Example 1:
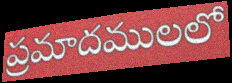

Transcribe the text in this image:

ప్రమాదములలో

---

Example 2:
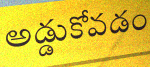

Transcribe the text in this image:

అడ్డుకోవడం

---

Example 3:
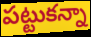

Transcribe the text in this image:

పట్టుకన్నా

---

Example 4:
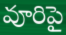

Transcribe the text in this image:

వూరిపై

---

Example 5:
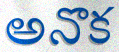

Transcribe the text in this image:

అనొక